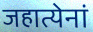
जहात्येनां